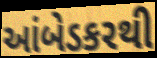
આંબેડકરથી